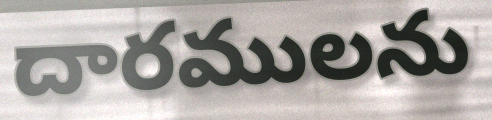
దారములను